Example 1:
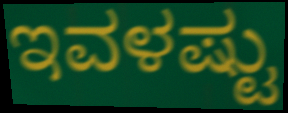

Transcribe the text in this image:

ಇವಳಷ್ಟು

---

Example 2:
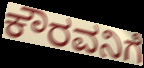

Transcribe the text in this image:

ಕೌರವನಿಗೆ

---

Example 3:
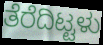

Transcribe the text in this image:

ತೆರೆದಿಟ್ಟಳು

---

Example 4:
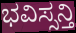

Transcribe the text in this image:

ಭವಿಸ್ಸನ್ತಿ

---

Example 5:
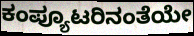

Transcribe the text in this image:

ಕಂಪ್ಯೂಟರಿನಂತೆಯೇ